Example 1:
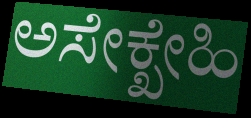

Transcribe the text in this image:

ಅಸೇಕ್ಖೇಹಿ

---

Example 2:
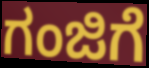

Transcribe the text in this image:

ಗಂಜಿಗೆ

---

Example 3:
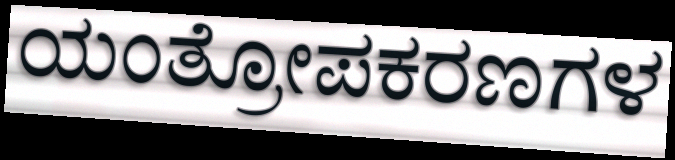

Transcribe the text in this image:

ಯಂತ್ರೋಪಕರಣಗಳ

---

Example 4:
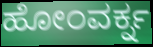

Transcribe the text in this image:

ಹೋಂವರ್ಕ್ನ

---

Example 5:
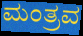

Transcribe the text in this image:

ಮಂತ್ರವ